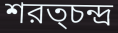
শরত্চন্দ্র